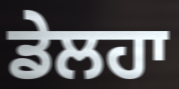
ਡੇਲਹਾ